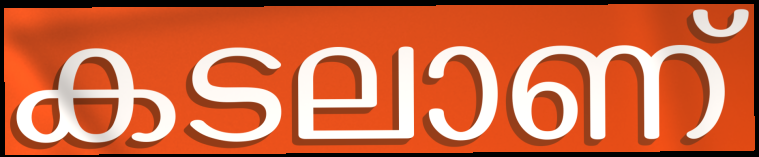
കടലാണ്